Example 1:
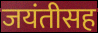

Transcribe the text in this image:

जयंतीसह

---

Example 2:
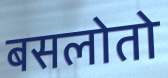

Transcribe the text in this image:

बसलोतो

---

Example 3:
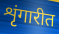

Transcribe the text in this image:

शृंगारीत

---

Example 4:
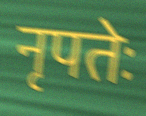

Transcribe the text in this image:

नृपतेः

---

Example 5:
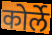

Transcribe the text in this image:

कोर्ले